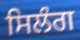
ਸਿਲੰਗ